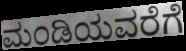
ಮಂಡಿಯವರೆಗೆ